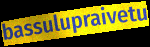
bassulupraivetu